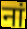
नां